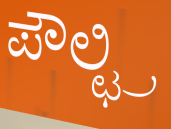
ಪೌಲ್ಟ್ರಿ